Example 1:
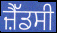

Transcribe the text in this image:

ਜ਼ੈੱਡਸੀ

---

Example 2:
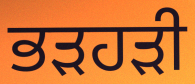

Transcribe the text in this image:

ਭੜਹੜੀ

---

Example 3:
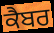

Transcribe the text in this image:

ਕੈਬਰ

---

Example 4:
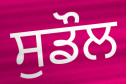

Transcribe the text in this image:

ਸੁਡੌਲ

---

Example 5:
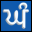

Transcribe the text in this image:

ਘੰ